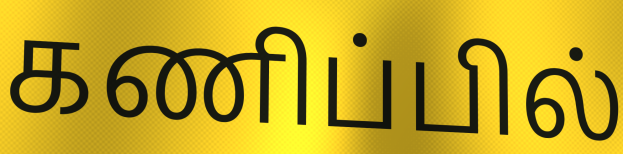
கணிப்பில்